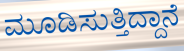
ಮೂಡಿಸುತ್ತಿದ್ದಾನೆ